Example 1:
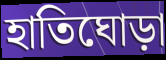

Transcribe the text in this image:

হাতিঘোড়া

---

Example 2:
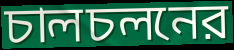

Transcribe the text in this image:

চালচলনের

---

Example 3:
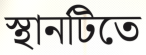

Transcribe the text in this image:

স্থানটিতে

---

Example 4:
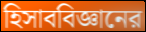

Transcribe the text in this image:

হিসাববিজ্ঞানের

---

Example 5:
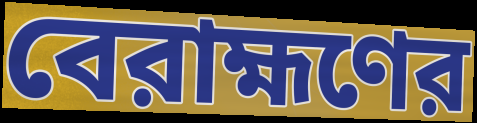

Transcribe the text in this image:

বেরাহ্মণের